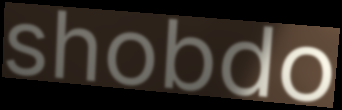
shobdo